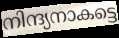
നിന്ദ്യനാകട്ടെ